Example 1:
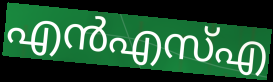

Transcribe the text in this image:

എൻഎസ്എ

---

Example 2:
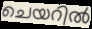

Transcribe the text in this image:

ചെയറിൽ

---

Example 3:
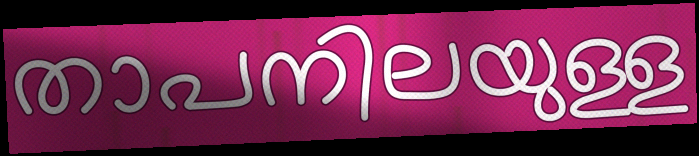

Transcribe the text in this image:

താപനിലയുള്ള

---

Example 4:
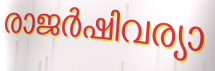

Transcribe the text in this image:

രാജർഷിവര്യാ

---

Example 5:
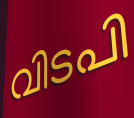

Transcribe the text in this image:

വിടപി